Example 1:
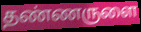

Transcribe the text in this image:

தண்ணருளை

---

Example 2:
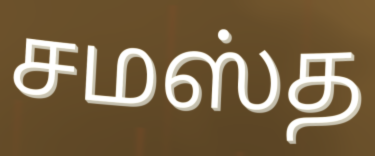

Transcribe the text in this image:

சமஸ்த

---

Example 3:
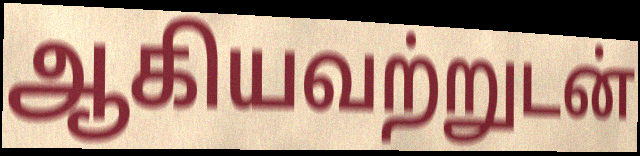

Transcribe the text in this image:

ஆகியவற்றுடன்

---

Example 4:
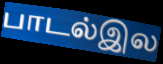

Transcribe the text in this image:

பாடல்இல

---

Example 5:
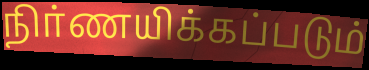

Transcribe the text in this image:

நிர்ணயிக்கப்படும்